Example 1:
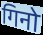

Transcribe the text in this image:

गिनो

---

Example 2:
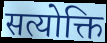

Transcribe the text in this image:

सत्योक्ति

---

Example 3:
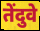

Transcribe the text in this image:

तेंदुवे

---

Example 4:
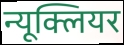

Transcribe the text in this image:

न्यूक्लियर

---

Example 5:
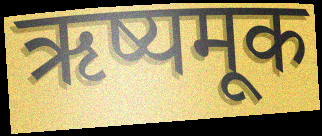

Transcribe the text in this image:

ऋष्यमूक